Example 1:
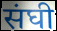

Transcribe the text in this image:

संघी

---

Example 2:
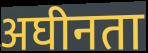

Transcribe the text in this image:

अघीनता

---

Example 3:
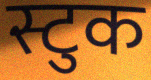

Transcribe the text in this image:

स्टुक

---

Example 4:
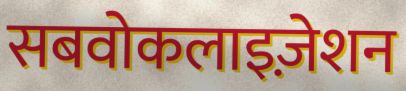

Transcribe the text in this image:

सबवोकलाइज़ेशन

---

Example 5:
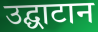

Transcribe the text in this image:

उद्घाटान